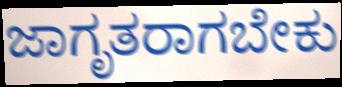
ಜಾಗೃತರಾಗಬೇಕು